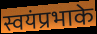
स्वयंप्रभाके